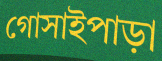
গোসাইপাড়া